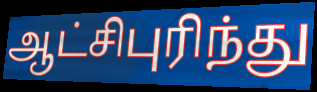
ஆட்சிபுரிந்து